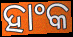
ହାଂକ